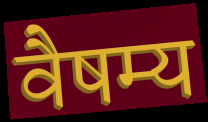
वैषम्य